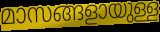
മാസങ്ങളായുള്ള